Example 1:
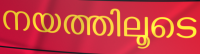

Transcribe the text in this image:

നയത്തിലൂടെ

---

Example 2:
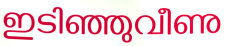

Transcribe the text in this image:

ഇടിഞ്ഞുവീണു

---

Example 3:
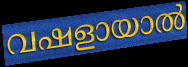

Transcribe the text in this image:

വഷളായാൽ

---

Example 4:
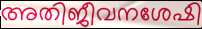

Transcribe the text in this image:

അതിജീവനശേഷി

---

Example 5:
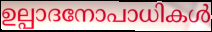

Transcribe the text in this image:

ഉല്പാദനോപാധികൾ